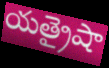
యత్రైషా